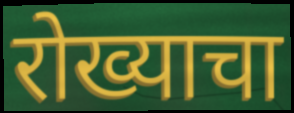
रोख्याचा